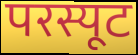
परस्यूट